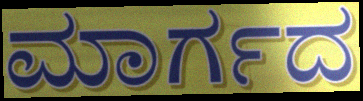
ಮಾರ್ಗದ